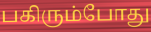
பகிரும்போது